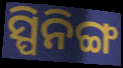
ସ୍ପିନିଙ୍ଗ